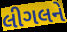
લીગલને